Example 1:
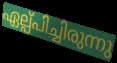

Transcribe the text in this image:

ഏല്പ്പിച്ചിരുന്നു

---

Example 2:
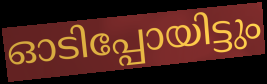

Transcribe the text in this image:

ഓടിപ്പോയിട്ടും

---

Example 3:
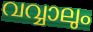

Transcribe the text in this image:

വവ്വാലും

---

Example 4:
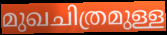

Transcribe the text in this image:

മുഖചിത്രമുള്ള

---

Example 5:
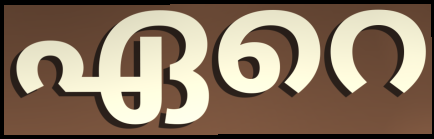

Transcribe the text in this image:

ഏറെ